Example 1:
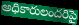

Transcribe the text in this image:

అధికారులందరిపై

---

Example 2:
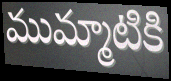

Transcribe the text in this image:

ముమ్మాటికి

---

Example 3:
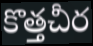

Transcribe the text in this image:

కొత్తచీర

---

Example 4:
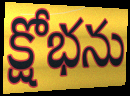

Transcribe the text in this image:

క్షోభను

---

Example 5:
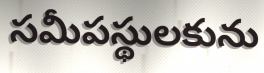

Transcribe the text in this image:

సమీపస్థులకును